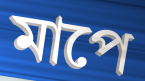
মাপে